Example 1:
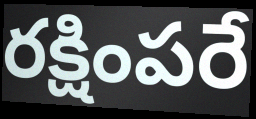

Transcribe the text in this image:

రక్షింపరే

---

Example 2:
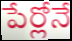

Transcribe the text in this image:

పేర్లోనే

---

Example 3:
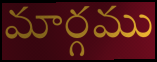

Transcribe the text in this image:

మార్గము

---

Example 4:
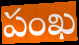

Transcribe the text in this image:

పంఖ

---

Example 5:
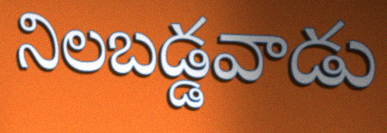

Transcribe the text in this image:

నిలబడ్డవాడు